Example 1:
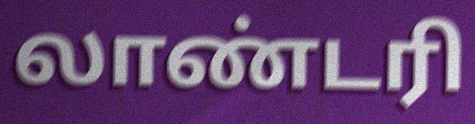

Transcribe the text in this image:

லாண்டரி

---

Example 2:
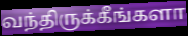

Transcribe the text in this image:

வந்திருக்கீங்களா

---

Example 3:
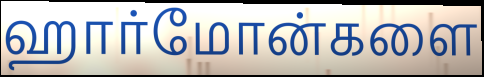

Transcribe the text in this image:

ஹார்மோன்களை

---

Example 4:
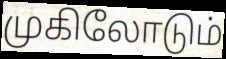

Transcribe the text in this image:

முகிலோடும்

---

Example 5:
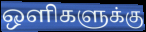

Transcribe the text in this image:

ஒளிகளுக்கு